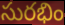
సురభిం